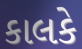
કાલકે